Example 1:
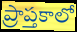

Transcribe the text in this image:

ప్రాప్తకాలో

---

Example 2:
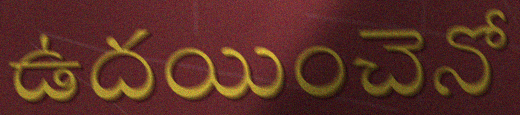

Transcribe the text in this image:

ఉదయించెనో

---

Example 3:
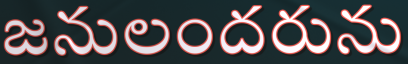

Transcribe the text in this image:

జనులందరును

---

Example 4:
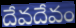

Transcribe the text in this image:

దేవదేవం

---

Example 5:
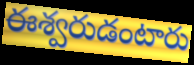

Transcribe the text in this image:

ఈశ్వరుడంటారు